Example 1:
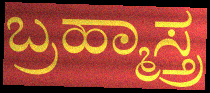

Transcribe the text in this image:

ಬ್ರಹ್ಮಾಸ್ತ್ರ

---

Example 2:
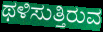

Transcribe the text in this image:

ಥಳಿಸುತ್ತಿರುವ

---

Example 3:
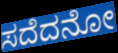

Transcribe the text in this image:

ಸದೆದನೋ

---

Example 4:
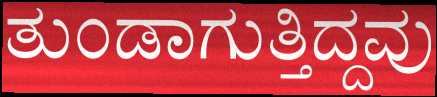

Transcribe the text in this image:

ತುಂಡಾಗುತ್ತಿದ್ದವು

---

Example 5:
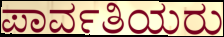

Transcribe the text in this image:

ಪಾರ್ವತಿಯರು